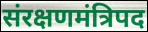
संरक्षणमंत्रिपद